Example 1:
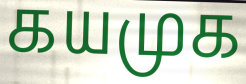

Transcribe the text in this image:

கயமுக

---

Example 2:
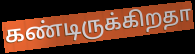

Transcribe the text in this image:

கண்டிருக்கிறதா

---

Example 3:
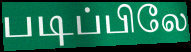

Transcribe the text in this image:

படிப்பிலே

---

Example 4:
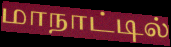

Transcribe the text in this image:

மாநாட்டில்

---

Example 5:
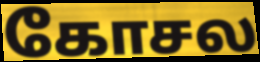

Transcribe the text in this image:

கோசல